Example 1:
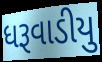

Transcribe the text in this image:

ધરૂવાડીયુ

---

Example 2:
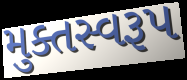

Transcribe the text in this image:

મુક્તસ્વરૂપ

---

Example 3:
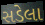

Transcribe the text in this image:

સડેલા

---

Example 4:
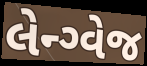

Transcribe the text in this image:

લેન્ગ્વેજ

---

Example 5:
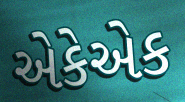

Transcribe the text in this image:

એકેએક